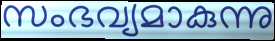
സംഭവ്യമാകുന്നു